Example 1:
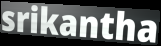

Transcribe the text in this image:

srikantha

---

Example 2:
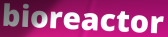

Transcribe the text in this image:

bioreactor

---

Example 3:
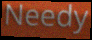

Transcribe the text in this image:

Needy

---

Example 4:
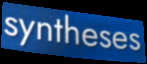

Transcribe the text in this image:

syntheses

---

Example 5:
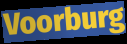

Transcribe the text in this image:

Voorburg